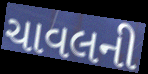
ચાવલની